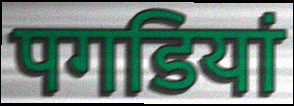
पगडियां